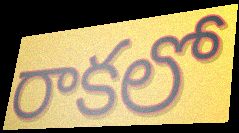
రాకలో